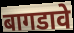
बागडावे